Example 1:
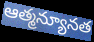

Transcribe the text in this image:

ఆత్మన్యూనత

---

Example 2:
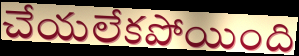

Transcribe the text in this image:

చేయలేకపోయింది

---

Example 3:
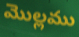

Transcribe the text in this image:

మొల్లము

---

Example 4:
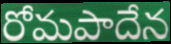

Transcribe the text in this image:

రోమపాదేన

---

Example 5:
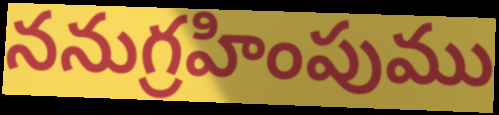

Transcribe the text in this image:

ననుగ్రహింపుము